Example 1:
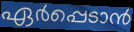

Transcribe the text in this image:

ഏർപ്പെടാൻ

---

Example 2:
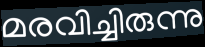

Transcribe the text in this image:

മരവിച്ചിരുന്നു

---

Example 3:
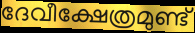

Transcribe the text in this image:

ദേവീക്ഷേത്രമുണ്ട്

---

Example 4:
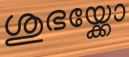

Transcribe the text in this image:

ശുഭയ്ക്കോ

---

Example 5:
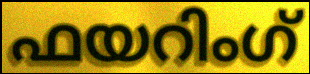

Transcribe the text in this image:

ഫയറിംഗ്